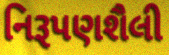
નિરૂપણશૈલી